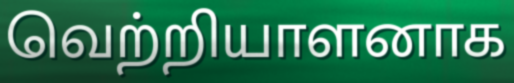
வெற்றியாளனாக